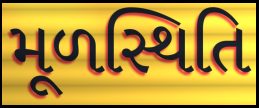
મૂળસ્થિતિ